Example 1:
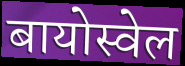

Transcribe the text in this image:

बायोस्वेल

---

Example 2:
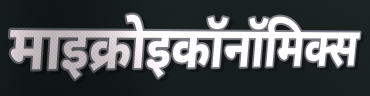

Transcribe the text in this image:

माइक्रोइकॉनॉमिक्स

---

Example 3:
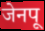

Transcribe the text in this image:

जेनपू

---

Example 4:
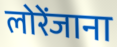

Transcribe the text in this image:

लोरेंजाना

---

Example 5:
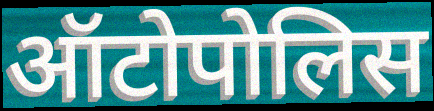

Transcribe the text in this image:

ऑटोपोलिस